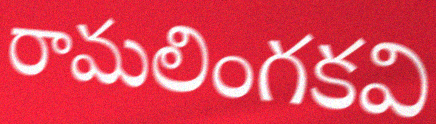
రామలింగకవి